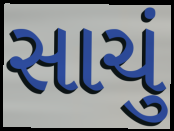
સાચું